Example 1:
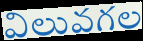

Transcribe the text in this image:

విలువగల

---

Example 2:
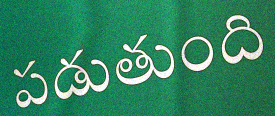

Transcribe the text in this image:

పడుతుంది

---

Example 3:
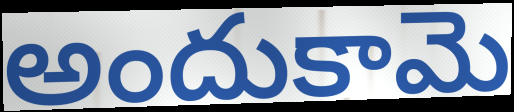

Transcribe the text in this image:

అందుకామె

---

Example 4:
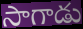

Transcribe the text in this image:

సాగాడు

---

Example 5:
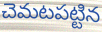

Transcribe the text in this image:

చెమటపట్టిన